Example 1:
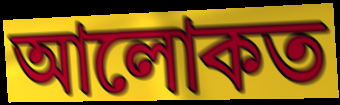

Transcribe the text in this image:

আলোকত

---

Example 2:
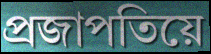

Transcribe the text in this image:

প্ৰজাপতিয়ে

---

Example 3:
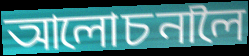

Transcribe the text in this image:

আলোচনালৈ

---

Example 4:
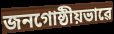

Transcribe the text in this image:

জনগোষ্ঠীয়ভাৱে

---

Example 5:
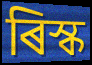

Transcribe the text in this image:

ৰিস্ক